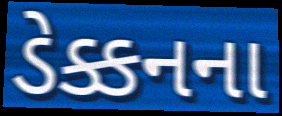
ડેક્કનના